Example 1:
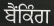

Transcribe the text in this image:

ਬੈਂਕਿੰਗ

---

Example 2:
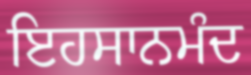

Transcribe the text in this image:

ਇਹਸਾਨਮੰਦ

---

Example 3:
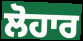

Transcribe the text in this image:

ਲੋਹਾਰ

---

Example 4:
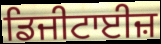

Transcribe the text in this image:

ਡਿਜੀਟਾਈਜ਼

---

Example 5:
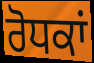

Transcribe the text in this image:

ਰੋਧਕਾਂ